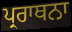
ਪ੍ਰਰਾਥਨਾ